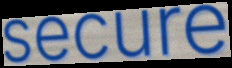
secure